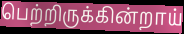
பெற்றிருக்கின்றாய்